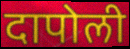
दापोली